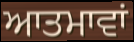
ਆਤਮਾਵਾਂ